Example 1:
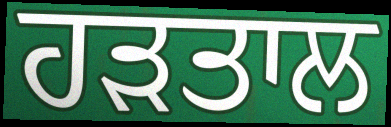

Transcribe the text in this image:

ਹੜਤਾਲ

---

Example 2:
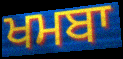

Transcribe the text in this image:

ਖਮਬਾ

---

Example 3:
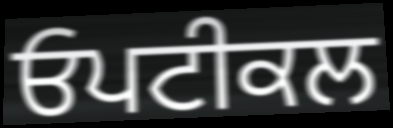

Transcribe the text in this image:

ਓਪਟੀਕਲ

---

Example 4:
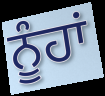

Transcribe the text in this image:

ਨੂੰਹਾਂ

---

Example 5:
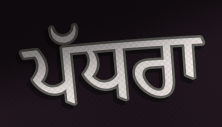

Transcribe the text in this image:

ਪੱਧਰਾ